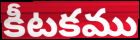
కీటకము